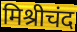
मिश्रीचंद